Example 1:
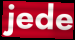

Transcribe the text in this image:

jede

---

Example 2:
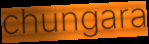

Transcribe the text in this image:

chungara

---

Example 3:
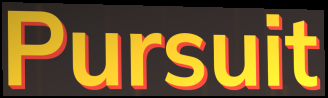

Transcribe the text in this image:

Pursuit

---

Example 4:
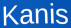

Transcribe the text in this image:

Kanis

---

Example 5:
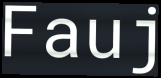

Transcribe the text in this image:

Fauj